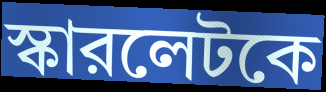
স্কারলেটকে